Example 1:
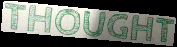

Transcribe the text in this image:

THOUGHT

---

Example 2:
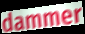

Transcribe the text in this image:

dammer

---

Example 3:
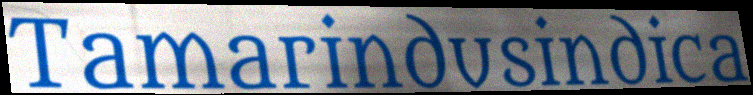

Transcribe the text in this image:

Tamarindusindica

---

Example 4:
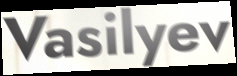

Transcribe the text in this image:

Vasilyev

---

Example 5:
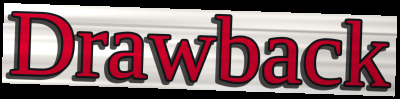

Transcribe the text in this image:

Drawback